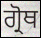
ਗ੍ਰੋਥ